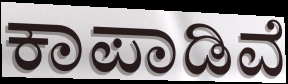
ಕಾಪಾಡಿವೆ